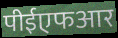
पीईएफआर